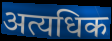
अत्यधिक